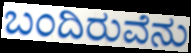
ಬಂದಿರುವೆನು